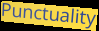
Punctuality